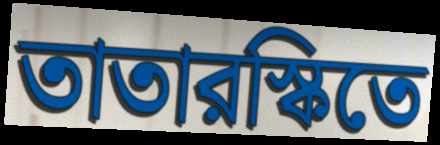
তাতারস্কিতে